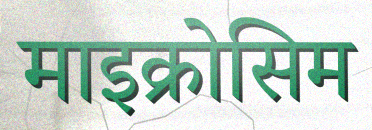
माइक्रोसिम